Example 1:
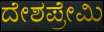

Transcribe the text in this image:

ದೇಶಪ್ರೇಮಿ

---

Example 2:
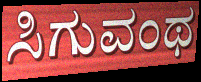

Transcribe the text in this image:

ಸಿಗುವಂಥ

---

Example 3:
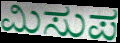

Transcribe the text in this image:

ಮಿಸುಪ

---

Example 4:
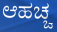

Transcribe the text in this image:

ಆಹಚ್ಚ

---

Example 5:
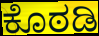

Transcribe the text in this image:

ಕೊಠಡಿ